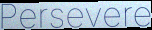
Persevere